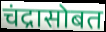
चंद्रासोबत